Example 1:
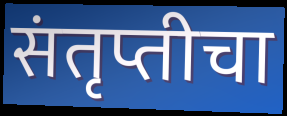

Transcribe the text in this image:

संतृप्तीचा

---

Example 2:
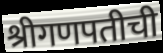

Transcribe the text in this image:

श्रीगणपतीची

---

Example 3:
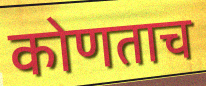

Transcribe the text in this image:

कोणताच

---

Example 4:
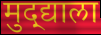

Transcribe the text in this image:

मुद्द्याला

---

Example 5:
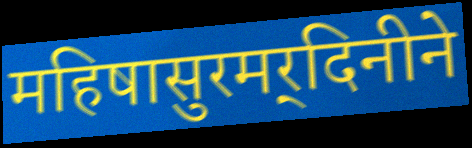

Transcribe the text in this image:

महिषासुरमर्दिनीने